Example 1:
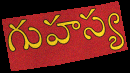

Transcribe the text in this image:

గుహస్య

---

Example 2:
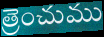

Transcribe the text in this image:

త్రెంచుము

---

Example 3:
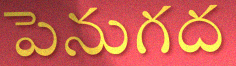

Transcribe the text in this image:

పెనుగద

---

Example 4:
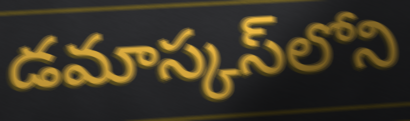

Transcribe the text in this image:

డమాస్కస్‌లోని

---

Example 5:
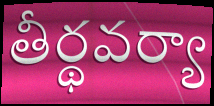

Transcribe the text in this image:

తీర్థవర్యా